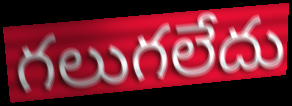
గలుగలేదు